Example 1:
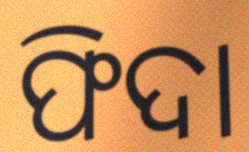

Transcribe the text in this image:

ଫିଦା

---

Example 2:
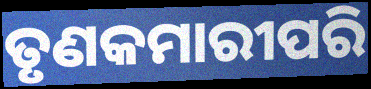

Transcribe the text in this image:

ତୃଣକମାରୀପରି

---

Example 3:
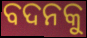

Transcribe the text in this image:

ବଦନକୁ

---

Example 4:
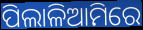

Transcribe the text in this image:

ପିଲାଳିଆମିରେ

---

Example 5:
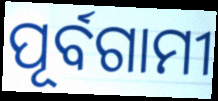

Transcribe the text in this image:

ପୂର୍ବଗାମୀ